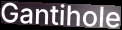
Gantihole